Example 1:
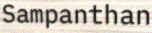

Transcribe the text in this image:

Sampanthan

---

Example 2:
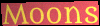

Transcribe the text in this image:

Moons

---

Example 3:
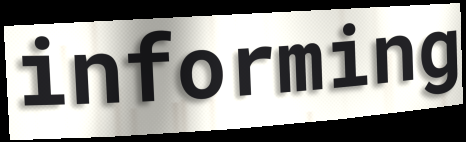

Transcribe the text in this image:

informing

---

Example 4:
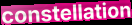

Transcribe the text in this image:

constellation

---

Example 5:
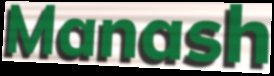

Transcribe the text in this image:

Manash